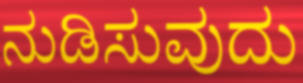
ನುಡಿಸುವುದು